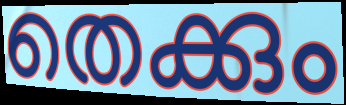
തെക്കും